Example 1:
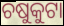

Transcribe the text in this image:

ଚଷୁକୁଟା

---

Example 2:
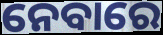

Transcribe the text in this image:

ନେବାରେ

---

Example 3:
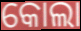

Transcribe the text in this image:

କୋଲା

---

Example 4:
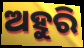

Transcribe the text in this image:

ଅହୁରି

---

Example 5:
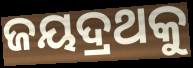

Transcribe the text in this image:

ଜୟଦ୍ରଥକୁ